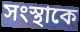
সংস্থাকে